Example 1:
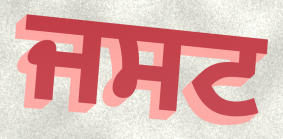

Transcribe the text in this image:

ਜਸਟ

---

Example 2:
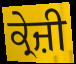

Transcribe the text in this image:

ਕ੍ਰੇਜ਼ੀ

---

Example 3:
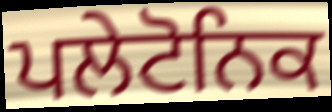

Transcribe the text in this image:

ਪਲੇਟੋਨਿਕ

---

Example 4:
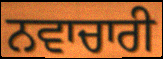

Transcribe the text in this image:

ਨਵਾਚਾਰੀ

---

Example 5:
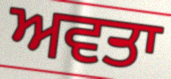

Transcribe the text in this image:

ਅਵਤਾ